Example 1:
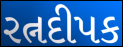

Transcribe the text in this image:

રત્નદીપક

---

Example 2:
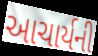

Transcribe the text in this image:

આચાર્યની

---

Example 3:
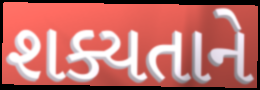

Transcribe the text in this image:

શક્યતાને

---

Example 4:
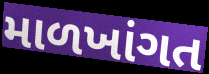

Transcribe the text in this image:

માળખાંગત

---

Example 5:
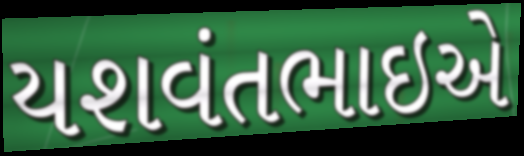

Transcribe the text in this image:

યશવંતભાઇએ